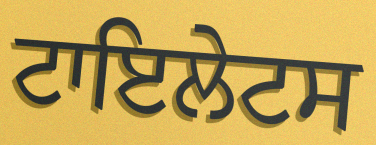
ਟਾਇਲੇਟਸ